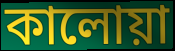
কালোয়া